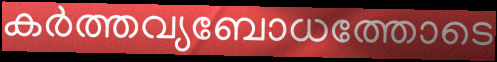
കർത്തവ്യബോധത്തോടെ